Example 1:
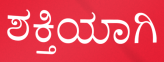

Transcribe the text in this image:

ಶಕ್ತಿಯಾಗಿ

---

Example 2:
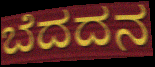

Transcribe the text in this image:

ಬೆದದನ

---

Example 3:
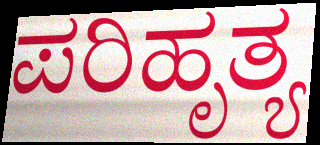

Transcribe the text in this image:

ಪರಿಹೃತ್ಯ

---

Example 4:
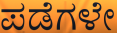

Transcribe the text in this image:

ಪಡೆಗಳೇ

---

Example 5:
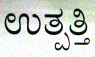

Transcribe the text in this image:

ಉತ್ಪತ್ತಿ